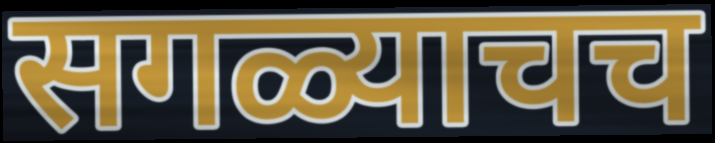
सगळ्याचच